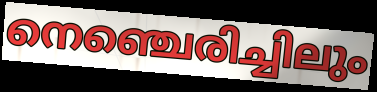
നെഞ്ചെരിച്ചിലും